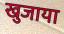
खुजाया